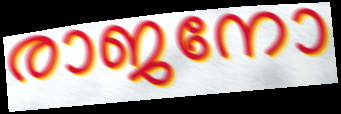
രാജനോ